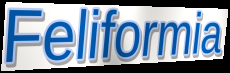
Feliformia